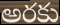
అరకు